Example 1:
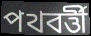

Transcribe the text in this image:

পথবর্ত্তী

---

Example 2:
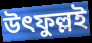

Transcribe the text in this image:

উৎফুল্লই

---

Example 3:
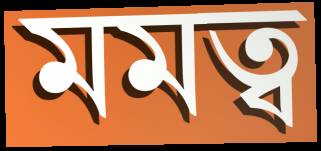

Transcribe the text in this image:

মমত্ব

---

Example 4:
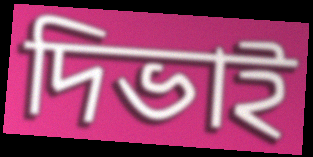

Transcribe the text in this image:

দিভাই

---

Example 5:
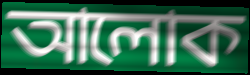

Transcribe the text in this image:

আলোক